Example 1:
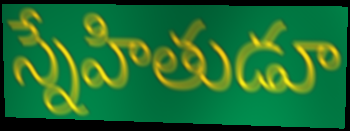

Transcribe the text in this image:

స్నేహితుడూ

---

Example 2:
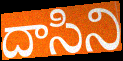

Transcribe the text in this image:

దాసిని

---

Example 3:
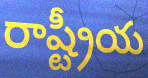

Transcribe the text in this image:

రాష్ట్రీయ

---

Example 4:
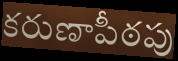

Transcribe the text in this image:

కరుణాపీఠపు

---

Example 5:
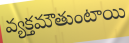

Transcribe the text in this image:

వ్యక్తమౌతుంటాయి